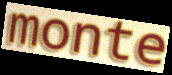
monte